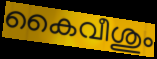
കൈവീശും